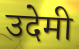
उदेमी